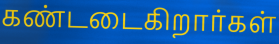
கண்டடைகிறார்கள்